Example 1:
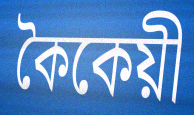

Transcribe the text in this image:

কৈকেয়ী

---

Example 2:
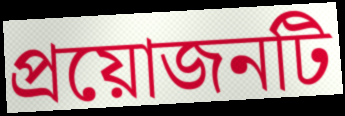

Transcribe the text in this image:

প্রয়োজনটি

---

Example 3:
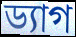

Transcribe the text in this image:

ড্যাগ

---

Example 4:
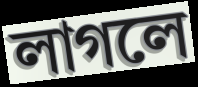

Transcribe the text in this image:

লাগলে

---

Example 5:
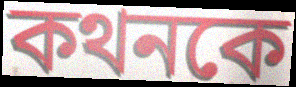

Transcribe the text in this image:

কথনকে